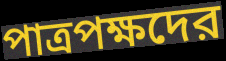
পাত্রপক্ষদের